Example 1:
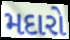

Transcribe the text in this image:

મદારો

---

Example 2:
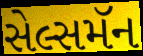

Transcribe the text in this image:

સેલ્સમૅન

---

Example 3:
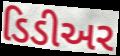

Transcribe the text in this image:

ડિડીઅર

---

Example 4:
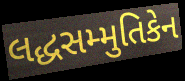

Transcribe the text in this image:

લદ્ધસમ્મુતિકેન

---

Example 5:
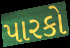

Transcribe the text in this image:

પારકો